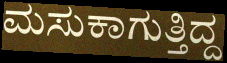
ಮಸುಕಾಗುತ್ತಿದ್ದ